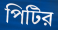
পিটির